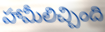
హామీలిచ్చింది